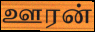
ஊரன்